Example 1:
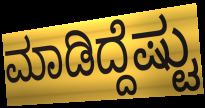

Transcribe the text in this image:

ಮಾಡಿದ್ದೆಷ್ಟು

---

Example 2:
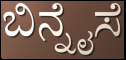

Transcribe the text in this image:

ಬಿನ್ನೈಸೆ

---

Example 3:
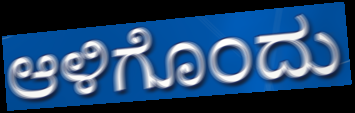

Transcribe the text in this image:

ಆಳಿಗೊಂದು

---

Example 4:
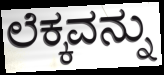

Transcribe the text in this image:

ಲೆಕ್ಕವನ್ನು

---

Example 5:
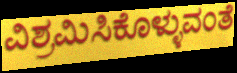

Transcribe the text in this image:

ವಿಶ್ರಮಿಸಿಕೊಳ್ಳುವಂತೆ